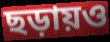
ছড়ায়ও